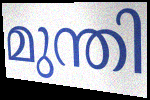
മുന്തി